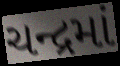
ચન્દ્રમાં